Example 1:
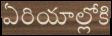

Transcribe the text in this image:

ఏరియాల్లోకి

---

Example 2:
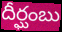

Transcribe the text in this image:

దీర్ఘంబు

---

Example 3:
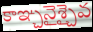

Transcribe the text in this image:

కాఞ్చనైశ్చైవ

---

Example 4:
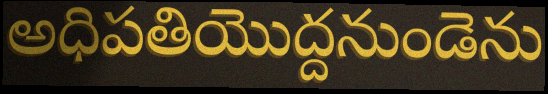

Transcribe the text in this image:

అధిపతియొద్దనుండెను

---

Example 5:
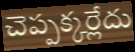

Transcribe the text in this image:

చెప్పక్కర్లేదు